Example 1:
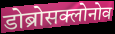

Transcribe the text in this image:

डोब्रोसक्लोनोव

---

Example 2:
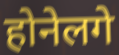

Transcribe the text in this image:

होनेलगे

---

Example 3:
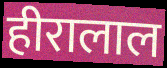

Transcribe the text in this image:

हीरालाल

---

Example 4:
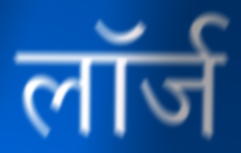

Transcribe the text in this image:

लॉर्ज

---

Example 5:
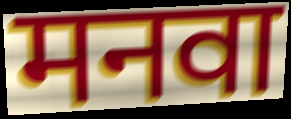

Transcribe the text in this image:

मनवा